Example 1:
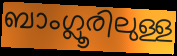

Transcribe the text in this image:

ബാംഗ്ലൂരിലുള്ള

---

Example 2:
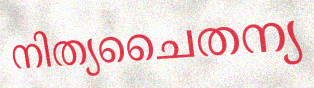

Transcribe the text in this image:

നിത്യചൈതന്യ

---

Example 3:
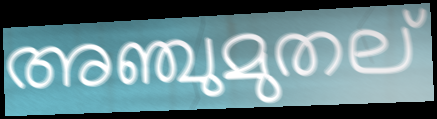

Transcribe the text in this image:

അഞ്ചുമുതല്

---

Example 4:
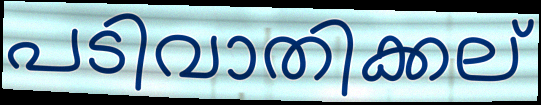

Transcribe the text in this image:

പടിവാതിക്കല്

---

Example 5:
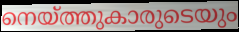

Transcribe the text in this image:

നെയ്ത്തുകാരുടെയും